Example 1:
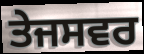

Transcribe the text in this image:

ਤੇਜਸਵਰ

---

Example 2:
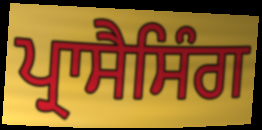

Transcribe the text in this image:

ਪ੍ਰਾਸੈਸਿੰਗ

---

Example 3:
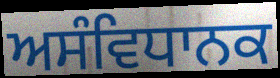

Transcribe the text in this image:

ਅਸੰਵਿਧਾਨਕ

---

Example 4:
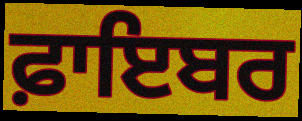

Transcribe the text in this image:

ਫ਼ਾਇਬਰ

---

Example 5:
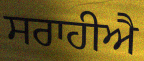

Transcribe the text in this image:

ਸਰਾਹੀਐ